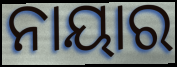
ନାୟାର